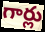
గార్లు